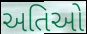
અતિઓ